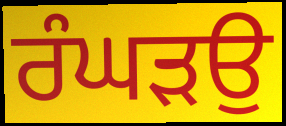
ਰੰਘੜਉ